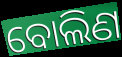
ବୋଲିଣ